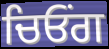
ਚਿਓਂਗ